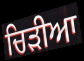
ਚਿੜੀਆ